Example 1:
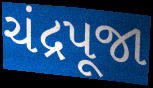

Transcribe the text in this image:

ચંદ્રપૂજા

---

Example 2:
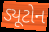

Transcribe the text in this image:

ડ્યૂટોન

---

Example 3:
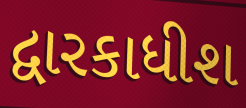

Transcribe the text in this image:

દ્વારકાધીશ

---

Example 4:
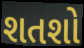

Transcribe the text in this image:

શતશો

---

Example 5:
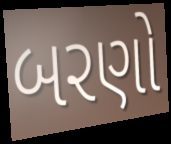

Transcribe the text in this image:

બરણો